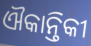
ଐକାନ୍ତିକୀ